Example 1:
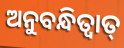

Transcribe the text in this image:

ଅନୁବନ୍ଧିତ୍ଵାତ୍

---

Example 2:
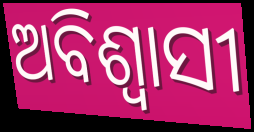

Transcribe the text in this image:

ଅବିଶ୍ଵାସୀ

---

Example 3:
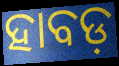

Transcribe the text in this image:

ହାବଡ଼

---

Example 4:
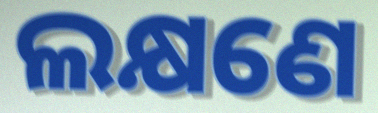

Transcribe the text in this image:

ଲକ୍ଷଣେ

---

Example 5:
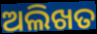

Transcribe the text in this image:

ଅଲିଖତ